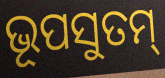
ଭୂପସୁତମ୍